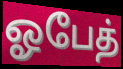
ஓபேத்